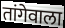
तांगेवाला